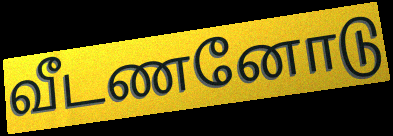
வீடணனோடு